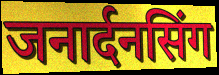
जनार्दनसिंग